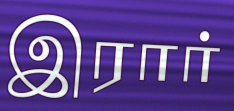
இரார்